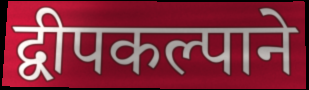
द्वीपकल्पाने